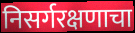
निसर्गरक्षणाचा